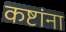
कष्टांना